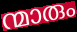
ന്മാരും